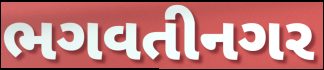
ભગવતીનગર